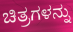
ಚಿತ್ರಗಳನ್ನು